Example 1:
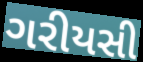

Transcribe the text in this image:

ગરીયસી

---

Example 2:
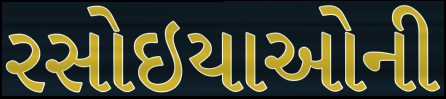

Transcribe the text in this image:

રસોઇયાઓની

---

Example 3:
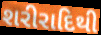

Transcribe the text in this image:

શરીરાદિથી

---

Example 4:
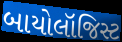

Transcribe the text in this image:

બાયોલૉજિસ્ટ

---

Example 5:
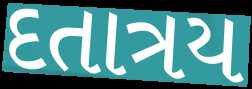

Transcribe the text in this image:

દતાત્રય